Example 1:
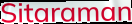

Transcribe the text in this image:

Sitaraman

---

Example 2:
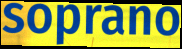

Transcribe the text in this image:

soprano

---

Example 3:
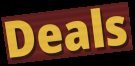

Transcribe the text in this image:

Deals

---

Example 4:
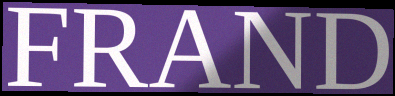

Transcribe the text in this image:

FRAND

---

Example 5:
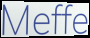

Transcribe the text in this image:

Meffe